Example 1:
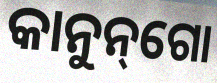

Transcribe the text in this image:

କାନୁନ୍‌ଗୋ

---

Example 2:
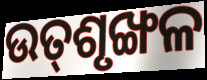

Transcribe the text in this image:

ଉତ୍‌ଶୃଙ୍ଖଳ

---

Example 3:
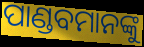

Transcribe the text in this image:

ପାଣ୍ଡବମାନଙ୍କୁ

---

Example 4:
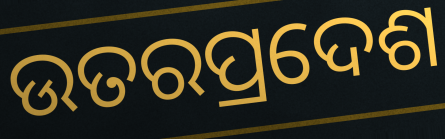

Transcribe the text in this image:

ଉତରପ୍ରଦେଶ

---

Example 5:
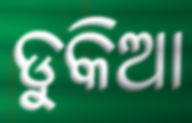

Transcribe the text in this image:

ଡୁକିଆ